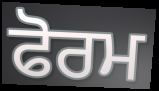
ਫੋਰਮ